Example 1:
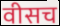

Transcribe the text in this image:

वीसच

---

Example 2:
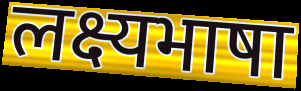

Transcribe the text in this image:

लक्ष्यभाषा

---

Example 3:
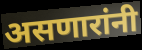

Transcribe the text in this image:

असणारांनी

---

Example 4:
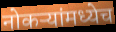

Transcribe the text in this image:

नोकऱ्यांमध्येच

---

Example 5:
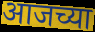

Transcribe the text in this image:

आजच्या